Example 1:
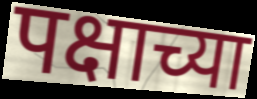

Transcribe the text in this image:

पक्षाच्या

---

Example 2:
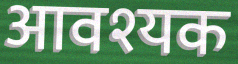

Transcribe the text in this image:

आवश्यक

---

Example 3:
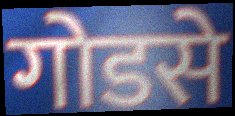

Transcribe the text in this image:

गोडसे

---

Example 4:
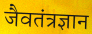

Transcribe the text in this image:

जैवतंत्रज्ञान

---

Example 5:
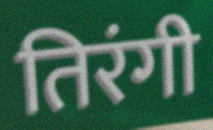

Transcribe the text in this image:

तिरंगी